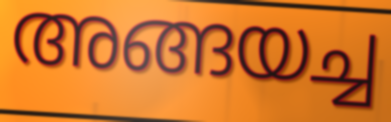
അങ്ങയച്ച